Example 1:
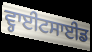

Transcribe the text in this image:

ਵ੍ਹਾਈਟਸਾਈਡ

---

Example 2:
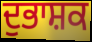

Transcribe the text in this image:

ਦੁਭਾਸ਼ਕ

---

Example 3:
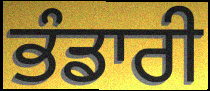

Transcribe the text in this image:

ਭੰਡਾਰੀ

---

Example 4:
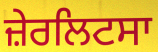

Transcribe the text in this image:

ਜ਼ੇਰਲਿਟਸਾ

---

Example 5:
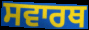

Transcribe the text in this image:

ਸਵਾਰਥ